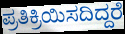
ಪ್ರತಿಕ್ರಿಯಿಸದಿದ್ದರೆ